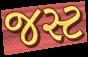
જસ્ટ